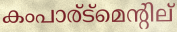
കംപാര്ട്മെന്റില്